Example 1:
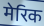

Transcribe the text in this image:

मेरिक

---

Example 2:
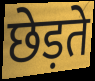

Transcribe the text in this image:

छेड़ते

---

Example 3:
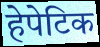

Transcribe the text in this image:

हेपेटिक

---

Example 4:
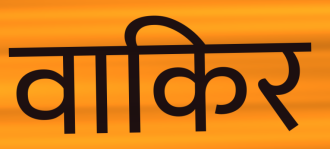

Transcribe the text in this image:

वाकिर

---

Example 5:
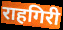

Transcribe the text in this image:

राहगिरी